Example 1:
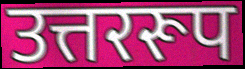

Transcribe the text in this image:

उत्तररूप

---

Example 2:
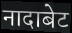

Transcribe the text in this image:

नादाबेट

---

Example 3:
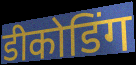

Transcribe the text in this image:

डीकोडिंग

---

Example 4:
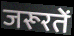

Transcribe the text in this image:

जरूरतें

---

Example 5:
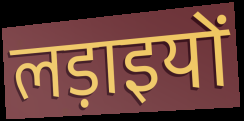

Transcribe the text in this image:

लड़ाइयों